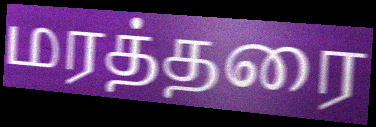
மரத்தரை